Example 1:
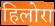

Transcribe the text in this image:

हिलोरा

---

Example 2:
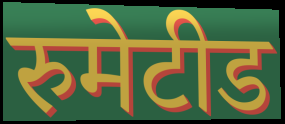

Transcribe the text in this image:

रुमेटीड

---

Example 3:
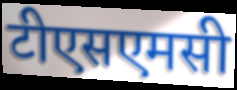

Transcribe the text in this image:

टीएसएमसी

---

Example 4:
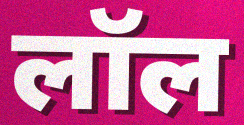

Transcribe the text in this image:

लॉल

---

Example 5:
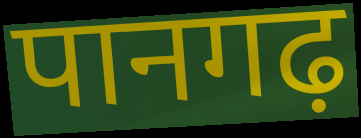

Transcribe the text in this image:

पानगढ़